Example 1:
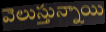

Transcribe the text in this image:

వెలుస్తున్నాయి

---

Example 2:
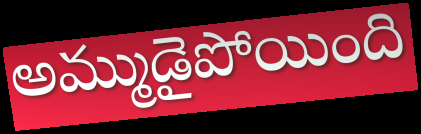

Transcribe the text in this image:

అమ్ముడైపోయింది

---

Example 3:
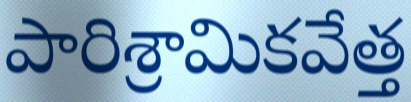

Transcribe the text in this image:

పారిశ్రామికవేత్త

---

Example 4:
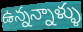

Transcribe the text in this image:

ఉన్నన్నాళ్ళు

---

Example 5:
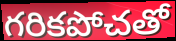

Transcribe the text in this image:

గరికపోచతో